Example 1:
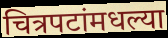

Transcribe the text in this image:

चित्रपटांमधल्या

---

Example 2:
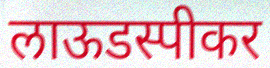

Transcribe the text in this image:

लाऊडस्पीकर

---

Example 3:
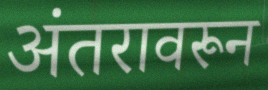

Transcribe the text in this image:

अंतरावरून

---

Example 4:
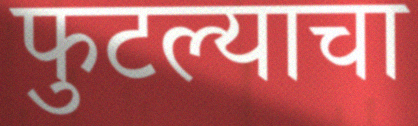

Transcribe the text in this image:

फुटल्याचा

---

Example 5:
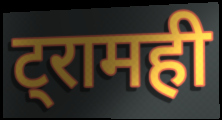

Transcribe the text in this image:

ट्रामही